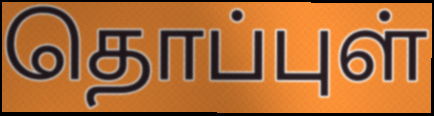
தொப்புள்